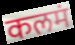
कलमं